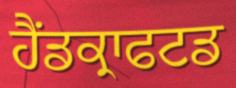
ਹੈਂਡਕ੍ਰਾਫਟਡ